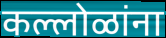
कल्लोळांना